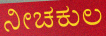
ನೀಚಕುಲ